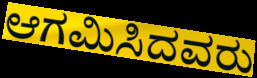
ಆಗಮಿಸಿದವರು